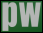
pw